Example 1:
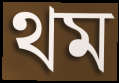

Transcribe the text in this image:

থম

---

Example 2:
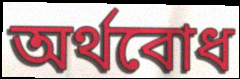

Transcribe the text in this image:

অৰ্থবোধ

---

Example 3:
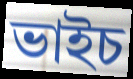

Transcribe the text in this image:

ভাইচ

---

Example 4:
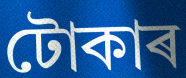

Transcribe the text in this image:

টোকাৰ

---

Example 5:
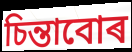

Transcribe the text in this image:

চিন্তাবোৰ